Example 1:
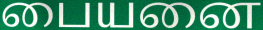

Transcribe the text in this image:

பையனை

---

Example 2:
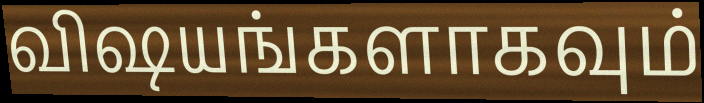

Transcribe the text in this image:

விஷயங்களாகவும்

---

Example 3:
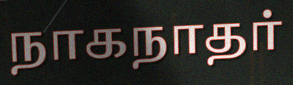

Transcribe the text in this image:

நாகநாதர்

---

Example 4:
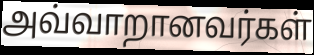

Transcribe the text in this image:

அவ்வாறானவர்கள்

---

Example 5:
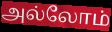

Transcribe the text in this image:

அல்லோம்